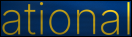
ational